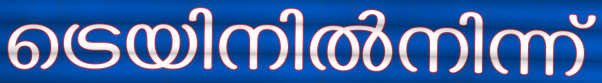
ട്രെയിനിൽനിന്ന്